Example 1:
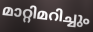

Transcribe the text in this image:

മാറ്റിമറിച്ചും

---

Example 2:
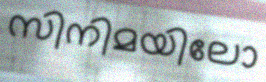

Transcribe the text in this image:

സിനിമയിലോ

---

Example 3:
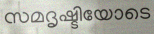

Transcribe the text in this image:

സമദൃഷ്ടിയോടെ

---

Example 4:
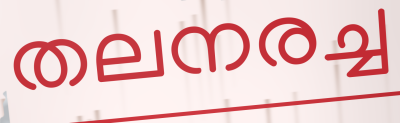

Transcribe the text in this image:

തലനരച്ച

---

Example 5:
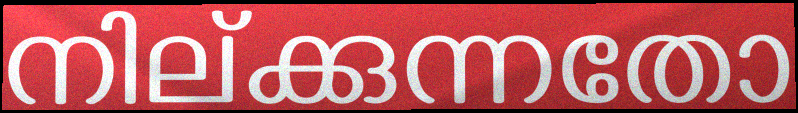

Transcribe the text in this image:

നില്ക്കുന്നതോ